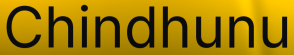
Chindhunu